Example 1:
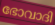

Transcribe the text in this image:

ഭോവാദി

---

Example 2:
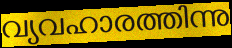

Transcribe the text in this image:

വ്യവഹാരത്തിന്നു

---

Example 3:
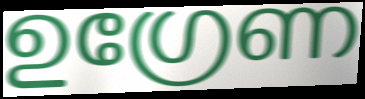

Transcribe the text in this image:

ഉഗ്രേണ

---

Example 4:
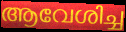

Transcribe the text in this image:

ആവേശിച്ച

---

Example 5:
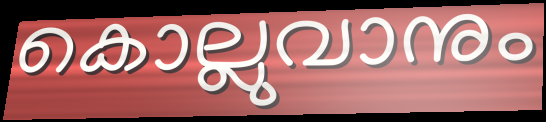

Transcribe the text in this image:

കൊല്ലുവാനും